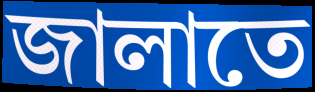
জালাতে